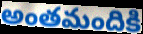
అంతమందికి